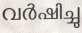
വർഷിച്ചു